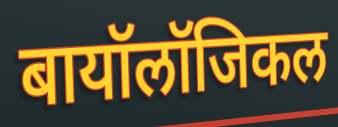
बायॉलॉजिकल